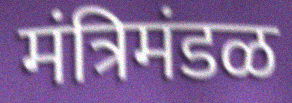
मंत्रिमंडळ